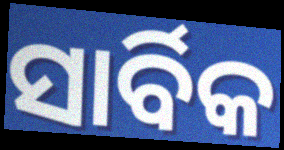
ସାର୍ବିକ